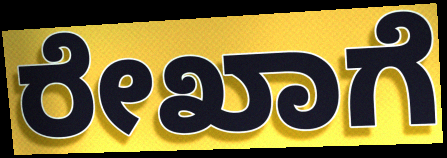
ರೇಖಾಗೆ